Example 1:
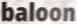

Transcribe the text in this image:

baloon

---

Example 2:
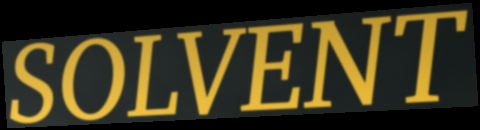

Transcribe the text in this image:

SOLVENT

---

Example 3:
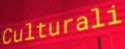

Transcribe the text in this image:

Culturali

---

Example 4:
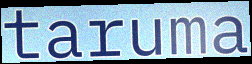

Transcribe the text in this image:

taruma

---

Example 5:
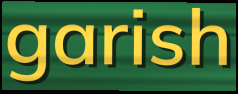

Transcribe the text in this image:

garish